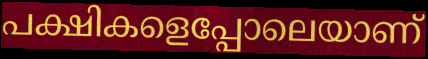
പക്ഷികളെപ്പോലെയാണ്